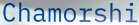
Chamorshi